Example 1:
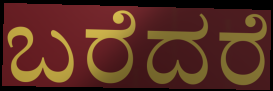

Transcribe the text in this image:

ಬರೆದರೆ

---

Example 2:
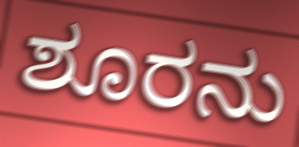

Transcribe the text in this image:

ಶೂರನು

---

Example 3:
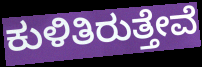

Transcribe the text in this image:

ಕುಳಿತಿರುತ್ತೇವೆ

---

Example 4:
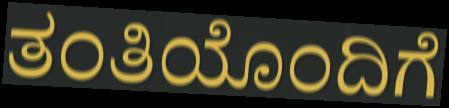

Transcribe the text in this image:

ತಂತಿಯೊಂದಿಗೆ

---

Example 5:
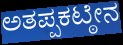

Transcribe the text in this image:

ಅತಪ್ಪಕಟ್ಠೇನ